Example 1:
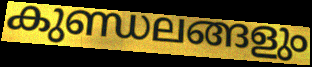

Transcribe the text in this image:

കുണ്ഡലങ്ങളും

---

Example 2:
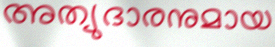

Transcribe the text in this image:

അത്യുദാരനുമായ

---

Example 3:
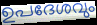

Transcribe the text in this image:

ഉപദേശവും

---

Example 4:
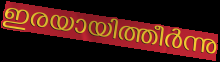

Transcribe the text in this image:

ഇരയായിത്തീർന്നു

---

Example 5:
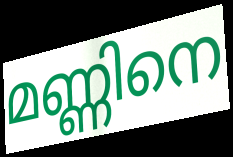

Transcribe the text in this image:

മണ്ണിനെ